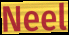
Neel